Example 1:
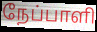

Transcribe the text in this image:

நேப்பாளி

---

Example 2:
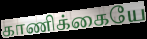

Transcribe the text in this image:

காணிக்கையே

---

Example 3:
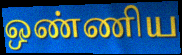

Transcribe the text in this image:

ஒண்ணிய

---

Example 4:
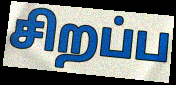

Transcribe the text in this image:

சிறப்ப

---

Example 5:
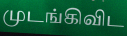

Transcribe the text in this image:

முடங்கிவிட